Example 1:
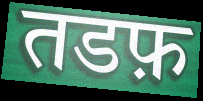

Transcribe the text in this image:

तडफ़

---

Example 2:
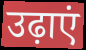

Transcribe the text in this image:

उढ़ाएं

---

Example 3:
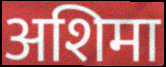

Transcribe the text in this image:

अशिमा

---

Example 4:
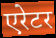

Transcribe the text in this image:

एरेटर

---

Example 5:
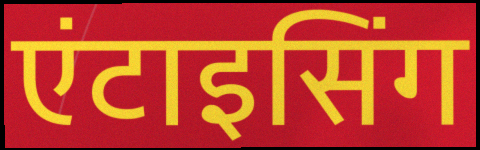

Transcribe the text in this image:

एंटाइसिंग